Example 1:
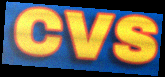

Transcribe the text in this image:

CVS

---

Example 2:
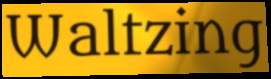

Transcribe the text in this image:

Waltzing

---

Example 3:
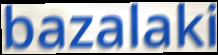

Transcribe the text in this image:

bazalaki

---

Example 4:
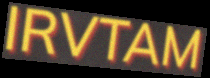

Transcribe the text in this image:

IRVTAM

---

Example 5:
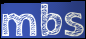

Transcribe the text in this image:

mbs